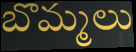
బొమ్మలు